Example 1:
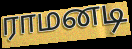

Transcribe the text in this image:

ராமனடி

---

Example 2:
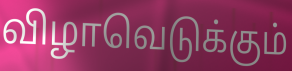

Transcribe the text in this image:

விழாவெடுக்கும்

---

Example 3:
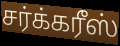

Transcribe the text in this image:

சர்க்கரீஸ்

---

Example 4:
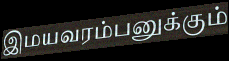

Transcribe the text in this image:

இமயவரம்பனுக்கும்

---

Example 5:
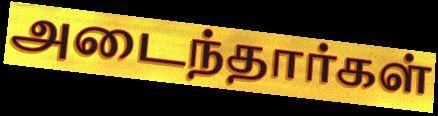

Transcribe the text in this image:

அடைந்தார்கள்